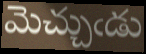
మెచ్చుఁడు